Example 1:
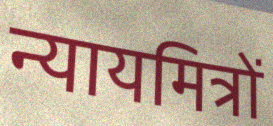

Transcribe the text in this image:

न्यायमित्रों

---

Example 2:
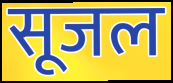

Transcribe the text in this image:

सूजल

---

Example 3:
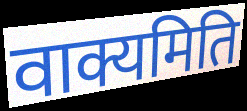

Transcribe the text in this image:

वाक्यमिति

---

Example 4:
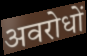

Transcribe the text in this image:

अवरोधों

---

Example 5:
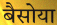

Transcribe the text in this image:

बैसोया